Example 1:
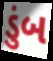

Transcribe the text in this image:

ડુંબ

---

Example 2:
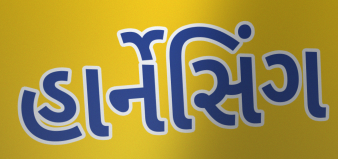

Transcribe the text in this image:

હાર્નેસિંગ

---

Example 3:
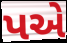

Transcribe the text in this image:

પએ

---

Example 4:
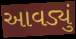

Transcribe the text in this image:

આવડ્યું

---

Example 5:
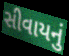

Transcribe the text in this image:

સીવાયનું